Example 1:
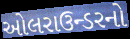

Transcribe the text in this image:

ઓલરાઉન્ડરનો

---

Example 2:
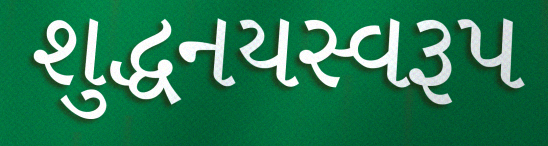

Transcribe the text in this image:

શુદ્ધનયસ્વરૂપ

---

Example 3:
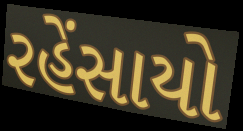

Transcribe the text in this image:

રહેંસાયો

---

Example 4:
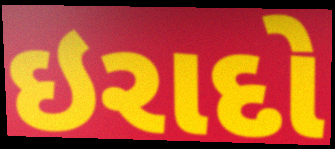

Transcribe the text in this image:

ઇરાદો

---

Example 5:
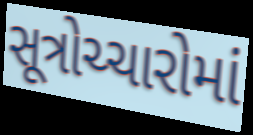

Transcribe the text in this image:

સૂત્રોચ્ચારોમાં